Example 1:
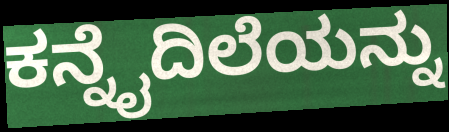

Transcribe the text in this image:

ಕನ್ನೈದಿಲೆಯನ್ನು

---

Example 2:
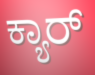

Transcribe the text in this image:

ಕ್ಯಾರ್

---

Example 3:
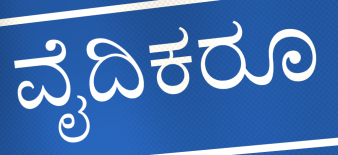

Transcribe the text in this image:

ವೈದಿಕರೂ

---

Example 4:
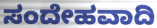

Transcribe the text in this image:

ಸಂದೇಹವಾದಿ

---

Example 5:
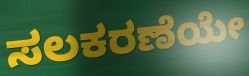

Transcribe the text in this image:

ಸಲಕರಣೆಯೇ